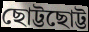
ছোট্টছোট্ট